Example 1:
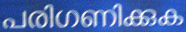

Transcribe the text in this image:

പരിഗണിക്കുക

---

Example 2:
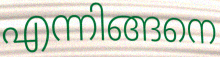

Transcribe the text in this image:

എന്നിങ്ങനെ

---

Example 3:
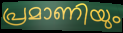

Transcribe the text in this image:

പ്രമാണിയും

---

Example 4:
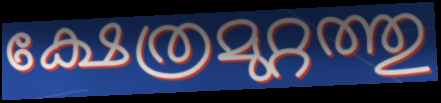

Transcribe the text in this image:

ക്ഷേത്രമുറ്റത്തു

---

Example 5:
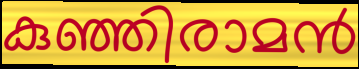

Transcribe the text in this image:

കുഞ്ഞിരാമൻ